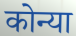
कोन्या